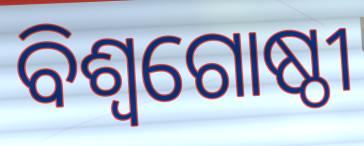
ବିଶ୍ୱଗୋଷ୍ଠୀ